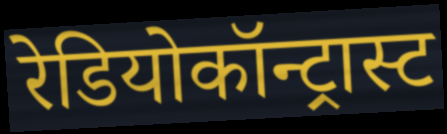
रेडियोकॉन्ट्रास्ट